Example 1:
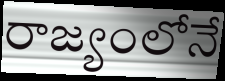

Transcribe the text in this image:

రాజ్యంలోనే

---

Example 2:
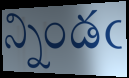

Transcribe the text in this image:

న్నిండఁ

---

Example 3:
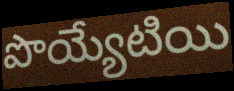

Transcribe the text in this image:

పొయ్యేటియి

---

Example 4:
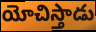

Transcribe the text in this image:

యోచిస్తాడు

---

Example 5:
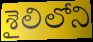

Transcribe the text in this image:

శైలిలోని